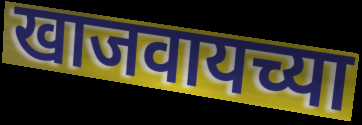
खाजवायच्या